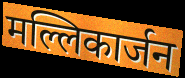
मल्लिकार्जन